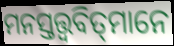
ମନସ୍ତତ୍ତ୍ୱବିତ୍‌ମାନେ